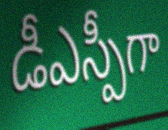
డీఎస్పీగా